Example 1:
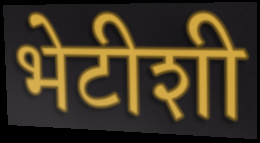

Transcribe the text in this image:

भेटीशी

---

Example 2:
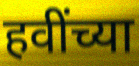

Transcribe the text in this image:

हवींच्या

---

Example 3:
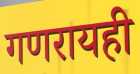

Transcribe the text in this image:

गणरायही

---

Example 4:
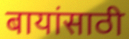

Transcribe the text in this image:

बायांसाठी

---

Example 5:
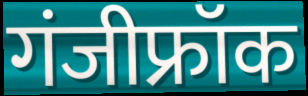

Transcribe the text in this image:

गंजीफ्रॉक